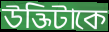
উক্তিটাকে